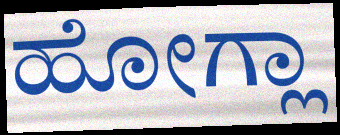
ಹೋಗ್ಲಾ